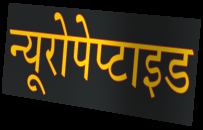
न्यूरोपेप्टाइड